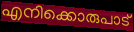
എനിക്കൊരുപാട്